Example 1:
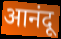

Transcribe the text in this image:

आनंदू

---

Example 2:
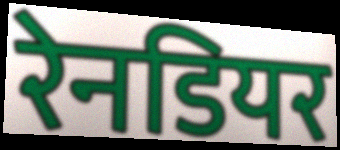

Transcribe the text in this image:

रेनडियर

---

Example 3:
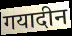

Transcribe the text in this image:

गयादीन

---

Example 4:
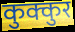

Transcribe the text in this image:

कुक्कुर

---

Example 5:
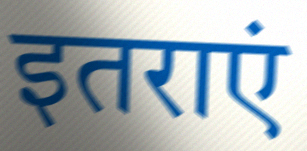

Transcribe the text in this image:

इतराएं